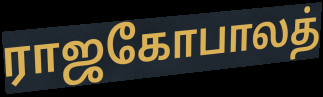
ராஜகோபாலத்